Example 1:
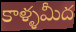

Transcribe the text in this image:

కాళ్ళమీద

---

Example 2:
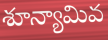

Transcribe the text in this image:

శూన్యామివ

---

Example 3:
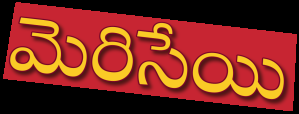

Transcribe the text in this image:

మెరిసేయి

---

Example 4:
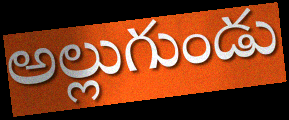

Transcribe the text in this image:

అల్లుగుండు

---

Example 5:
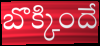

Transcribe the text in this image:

బొక్కిందే